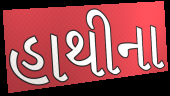
હાથીના